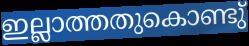
ഇല്ലാത്തതുകൊണ്ടു്